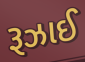
રૂઝાઈ